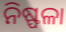
ନିଷ୍ଫଳା